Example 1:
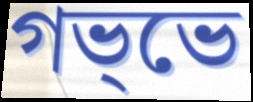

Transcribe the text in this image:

গভ্ভে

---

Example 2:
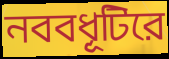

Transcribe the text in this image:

নববধূটিরে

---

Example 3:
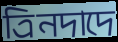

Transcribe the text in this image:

ত্রিনদাদে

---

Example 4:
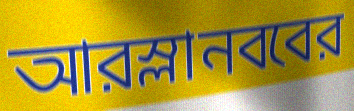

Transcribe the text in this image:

আরস্লানববের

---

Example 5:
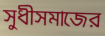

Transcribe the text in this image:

সুধীসমাজের